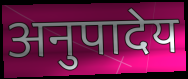
अनुपादेय